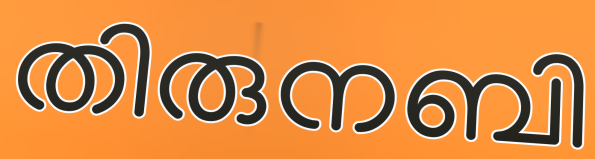
തിരുനബി